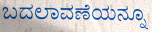
ಬದಲಾವಣೆಯನ್ನೂ